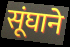
सूंघाने